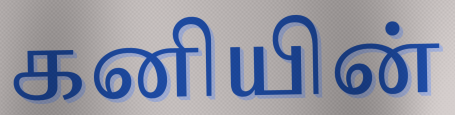
கனியின்